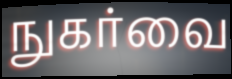
நுகர்வை